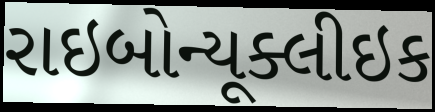
રાઇબોન્યૂક્લીઇક